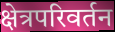
क्षेत्रपरिवर्तन